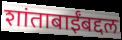
शांताबाईंबद्दल